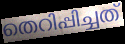
തെറിപ്പിച്ചത്